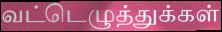
வட்டெழுத்துக்கள்